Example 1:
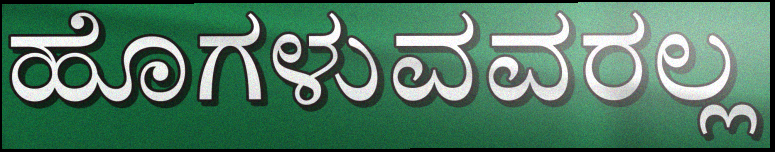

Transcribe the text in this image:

ಹೊಗಳುವವರಲ್ಲ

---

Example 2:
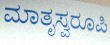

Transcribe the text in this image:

ಮಾತೃಸ್ವರೂಪಿ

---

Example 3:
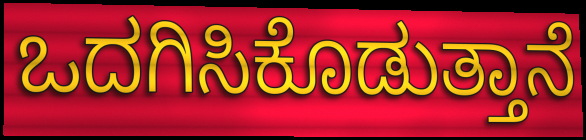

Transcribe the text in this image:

ಒದಗಿಸಿಕೊಡುತ್ತಾನೆ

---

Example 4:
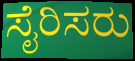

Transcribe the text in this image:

ಸೈರಿಸರು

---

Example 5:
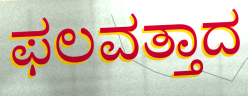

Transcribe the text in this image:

ಫಲವತ್ತಾದ